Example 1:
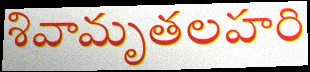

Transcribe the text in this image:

శివామృతలహరి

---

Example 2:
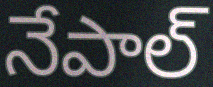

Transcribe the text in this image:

నేపాల్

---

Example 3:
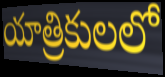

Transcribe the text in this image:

యాత్రికులలో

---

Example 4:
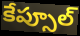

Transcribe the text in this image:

కేప్సూల్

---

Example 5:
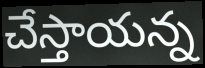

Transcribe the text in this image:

చేస్తాయన్న